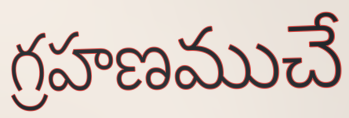
గ్రహణముచే